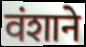
वंशाने